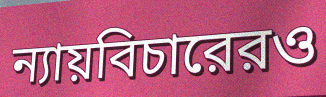
ন্যায়বিচারেরও